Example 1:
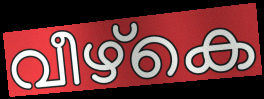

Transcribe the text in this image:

വീഴ്കെ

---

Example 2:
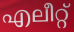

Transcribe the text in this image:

എലീറ്റ്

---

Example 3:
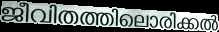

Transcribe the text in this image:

ജീവിതത്തിലൊരിക്കൽ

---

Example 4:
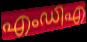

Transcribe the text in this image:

എംഡിഎ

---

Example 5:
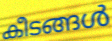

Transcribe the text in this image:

കീടങ്ങൾ